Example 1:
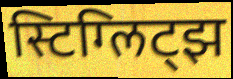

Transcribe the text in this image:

स्टिग्लिट्झ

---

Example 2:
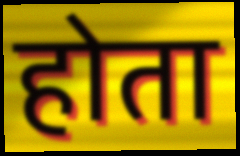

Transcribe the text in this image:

होता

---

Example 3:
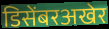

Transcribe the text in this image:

डिसेंबरअखेर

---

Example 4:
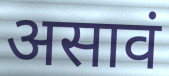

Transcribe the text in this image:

असावं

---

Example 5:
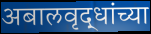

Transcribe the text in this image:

अबालवृद्धांच्या